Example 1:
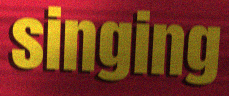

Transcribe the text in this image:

singing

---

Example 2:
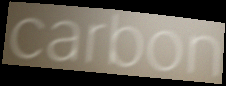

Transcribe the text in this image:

carbon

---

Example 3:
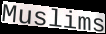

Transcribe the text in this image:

Muslims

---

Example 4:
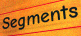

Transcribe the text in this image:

Segments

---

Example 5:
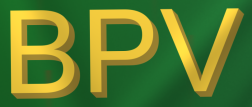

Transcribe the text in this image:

BPV